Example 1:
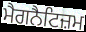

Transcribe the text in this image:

ਮੈਗਨੈਟਿਜ਼ਮ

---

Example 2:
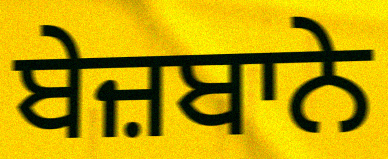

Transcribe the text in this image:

ਬੇਜ਼ਬਾਨੇ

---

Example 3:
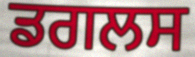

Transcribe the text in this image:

ਡਗਲਸ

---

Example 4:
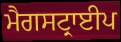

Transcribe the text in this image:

ਮੈਗਸਟ੍ਰਾਈਪ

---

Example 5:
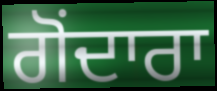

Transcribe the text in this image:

ਗੋਂਦਾਰਾ